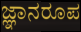
ಜ್ಞಾನರೂಪ